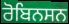
ਰੋਬਿਨਸਨ